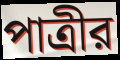
পাত্রীর